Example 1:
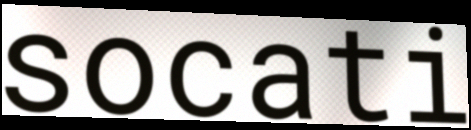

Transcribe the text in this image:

socati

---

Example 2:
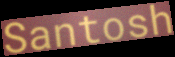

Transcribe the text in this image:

Santosh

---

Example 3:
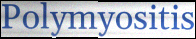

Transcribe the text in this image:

Polymyositis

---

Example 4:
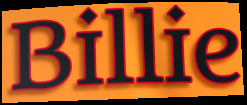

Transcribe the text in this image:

Billie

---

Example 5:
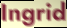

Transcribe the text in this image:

Ingrid